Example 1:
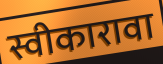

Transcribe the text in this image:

स्वीकारावा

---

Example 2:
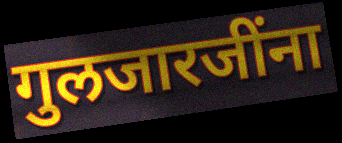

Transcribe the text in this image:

गुलजारजींना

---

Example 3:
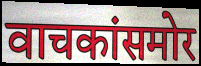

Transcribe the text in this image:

वाचकांसमोर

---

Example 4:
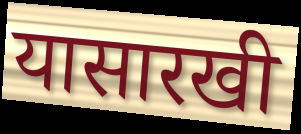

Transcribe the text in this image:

यासारखी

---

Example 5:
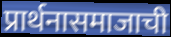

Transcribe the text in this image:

प्रार्थनासमाजाची